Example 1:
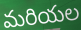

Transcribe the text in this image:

మరియల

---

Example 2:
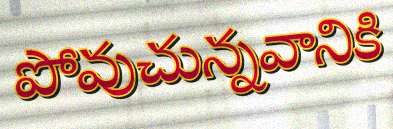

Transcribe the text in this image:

పోవుచున్నవానికి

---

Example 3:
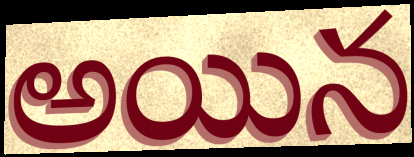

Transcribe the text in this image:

అయిన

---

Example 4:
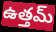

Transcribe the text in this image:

ఉత్తమ్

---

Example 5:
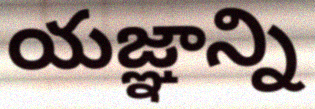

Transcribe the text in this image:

యజ్ఞాన్ని